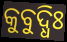
କୁବୁଦ୍ଧିଃ